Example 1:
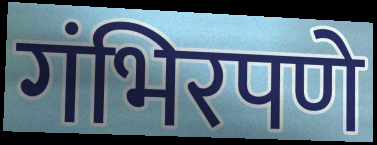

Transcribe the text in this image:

गंभिरपणे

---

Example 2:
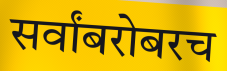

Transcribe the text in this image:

सर्वांबरोबरच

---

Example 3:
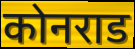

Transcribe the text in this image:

कोनराड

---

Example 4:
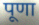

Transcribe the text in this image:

पूणा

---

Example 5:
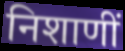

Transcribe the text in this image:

निशाणीं